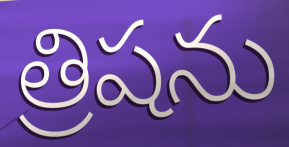
త్రిషను